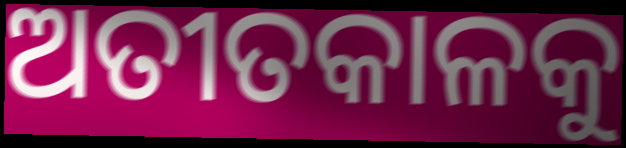
ଅତୀତକାଳକୁ